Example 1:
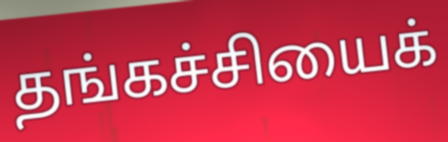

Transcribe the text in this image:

தங்கச்சியைக்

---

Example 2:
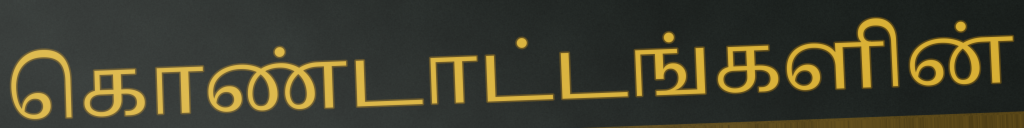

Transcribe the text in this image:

கொண்டாட்டங்களின்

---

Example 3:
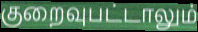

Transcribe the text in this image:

குறைவுபட்டாலும்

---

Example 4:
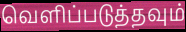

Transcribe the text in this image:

வெளிப்படுத்தவும்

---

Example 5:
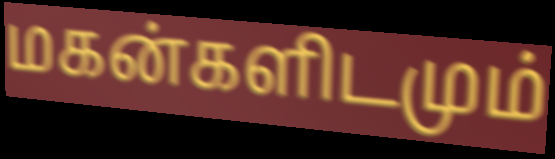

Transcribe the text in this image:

மகன்களிடமும்